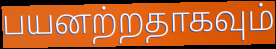
பயனற்றதாகவும்